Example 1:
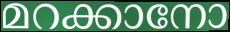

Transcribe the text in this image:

മറക്കാനോ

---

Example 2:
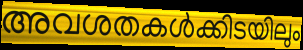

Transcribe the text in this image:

അവശതകൾക്കിടയിലും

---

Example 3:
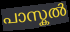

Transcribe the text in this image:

പാസ്കൽ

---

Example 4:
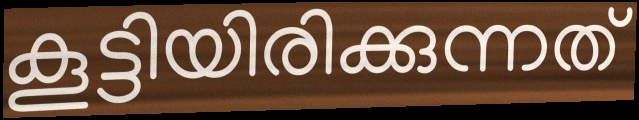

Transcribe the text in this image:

കൂട്ടിയിരിക്കുന്നത്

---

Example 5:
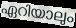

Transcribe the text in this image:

ഏറിയാലും